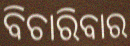
ବିଚାରିବାର